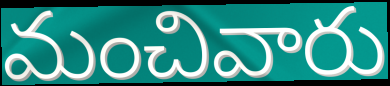
మంచివారు